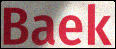
Baek